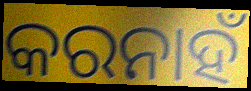
କରନାହଁ